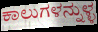
ಕಾಲುಗಳನ್ನುಳ್ಳ